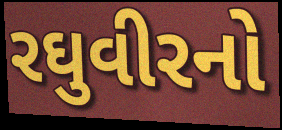
રઘુવીરનો